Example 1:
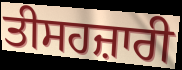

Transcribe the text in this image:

ਤੀਸਹਜ਼ਾਰੀ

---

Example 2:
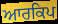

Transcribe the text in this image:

ਆਰਕਿਪ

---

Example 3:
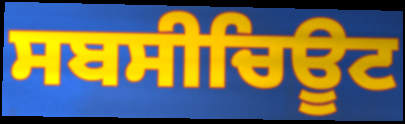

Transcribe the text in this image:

ਸਬਸੀਚਿਊਟ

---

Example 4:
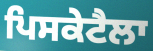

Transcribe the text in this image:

ਪਿਸਕੇਟੈਲਾ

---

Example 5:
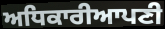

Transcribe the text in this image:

ਅਧਿਕਾਰੀਆਪਣੀ